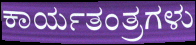
ಕಾರ್ಯತಂತ್ರಗಳು